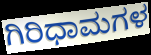
ಗಿರಿಧಾಮಗಳ